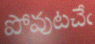
పోవుటచేఁ